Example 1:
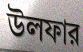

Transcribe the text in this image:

উলফার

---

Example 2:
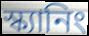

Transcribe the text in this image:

স্ক্যানিং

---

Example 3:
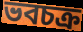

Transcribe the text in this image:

ভবচক্র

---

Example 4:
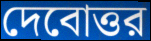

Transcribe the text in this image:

দেবোত্তর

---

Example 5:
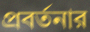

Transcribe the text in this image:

প্রবর্তনার